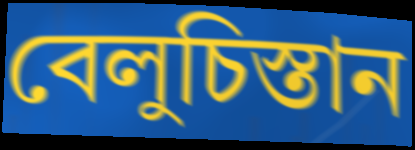
বেলুচিস্তান